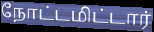
நோட்டமிட்டார்